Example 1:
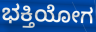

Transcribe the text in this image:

ಭಕ್ತಿಯೋಗ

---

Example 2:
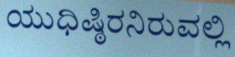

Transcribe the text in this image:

ಯುಧಿಷ್ಠಿರನಿರುವಲ್ಲಿ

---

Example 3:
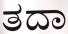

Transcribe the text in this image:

ತದಾ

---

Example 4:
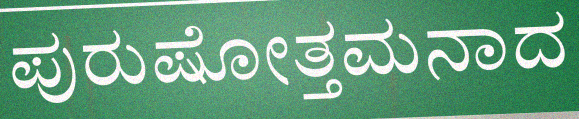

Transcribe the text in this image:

ಪುರುಷೋತ್ತಮನಾದ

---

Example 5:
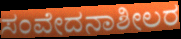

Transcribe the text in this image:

ಸಂವೇದನಾಶೀಲರ